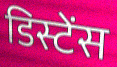
डिस्टेंस